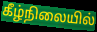
கீழ்நிலையில்